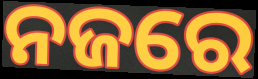
ନଜରେ